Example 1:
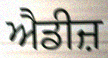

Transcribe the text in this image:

ਐਡੀਜ਼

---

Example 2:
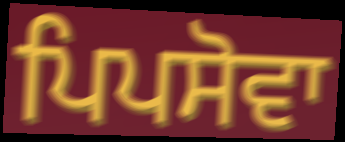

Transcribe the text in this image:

ਪਿਪਸੋਵਾ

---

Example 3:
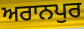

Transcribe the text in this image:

ਅਰਾਨਪੁਰ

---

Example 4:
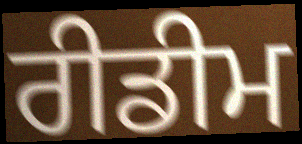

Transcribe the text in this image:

ਰੀਡੀਮ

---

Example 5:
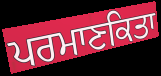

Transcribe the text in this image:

ਪਰਮਾਣਕਿਤਾ